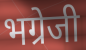
भग्रेजी